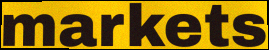
markets